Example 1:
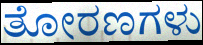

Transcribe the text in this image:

ತೋರಣಗಳು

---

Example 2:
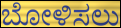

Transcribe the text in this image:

ಬೋಳಿಸಲು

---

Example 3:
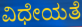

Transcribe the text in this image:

ವಿಧೇಯತೆ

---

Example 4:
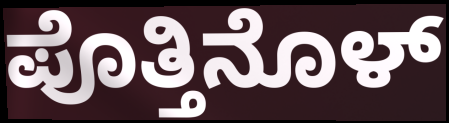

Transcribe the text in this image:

ಪೊತ್ತಿನೊಳ್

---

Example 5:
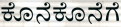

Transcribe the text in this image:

ಕೊನೆಕೊನೆಗೆ